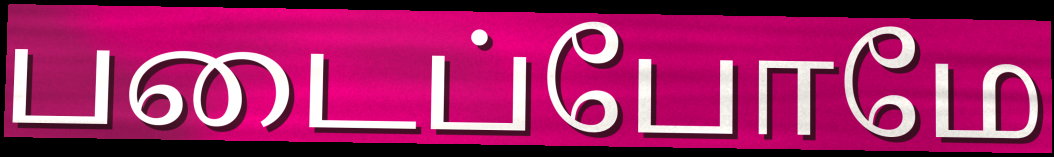
படைப்போமே